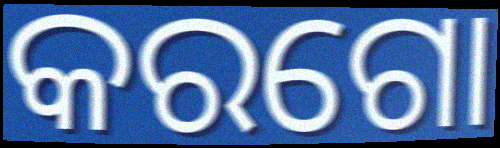
କରଗୋ